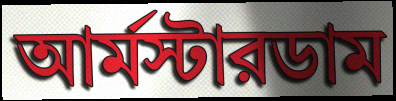
আর্মস্টারডাম